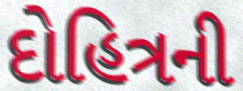
દોહિત્રની